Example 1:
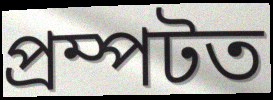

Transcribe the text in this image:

প্ৰম্পটত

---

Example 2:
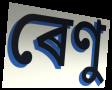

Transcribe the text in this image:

ৰেণু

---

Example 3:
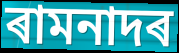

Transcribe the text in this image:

ৰামনাদৰ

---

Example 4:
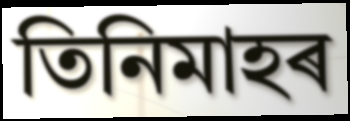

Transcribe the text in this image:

তিনিমাহৰ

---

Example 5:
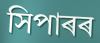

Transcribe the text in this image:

সিপাৰৰ